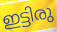
ഇട്ടിരു